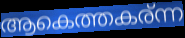
ആകെത്തകര്ന്ന